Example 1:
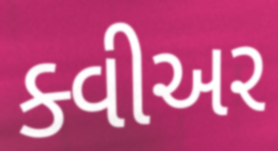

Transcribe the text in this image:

ક્વીઅર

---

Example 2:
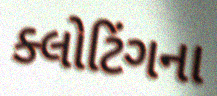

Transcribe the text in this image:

ક્લોટિંગના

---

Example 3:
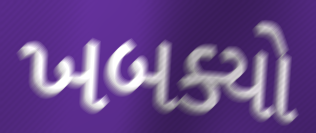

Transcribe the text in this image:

ખબક્યો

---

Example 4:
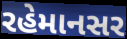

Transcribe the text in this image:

રહેમાનસર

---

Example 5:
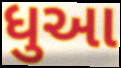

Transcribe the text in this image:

ધુઆ